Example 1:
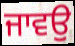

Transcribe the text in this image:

ਜਾਵਉ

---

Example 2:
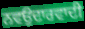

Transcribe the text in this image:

ਨਵਉਦਾਰਵਾਦੀ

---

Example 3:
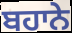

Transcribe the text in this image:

ਬਹਾਨੇ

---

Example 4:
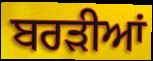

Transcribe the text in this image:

ਬਰੜੀਆਂ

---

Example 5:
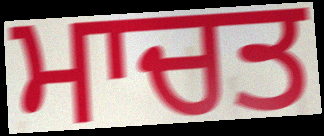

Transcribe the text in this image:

ਮਾਚਤ